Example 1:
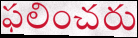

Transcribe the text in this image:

ఫలించరు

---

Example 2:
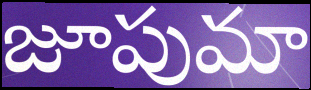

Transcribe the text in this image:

జూపుమా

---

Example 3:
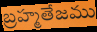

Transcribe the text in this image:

బ్రహ్మతేజము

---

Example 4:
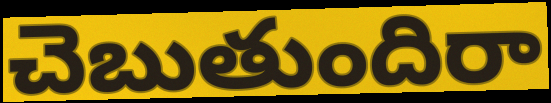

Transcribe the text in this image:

చెబుతుందిరా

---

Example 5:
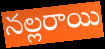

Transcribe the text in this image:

నల్లరాయి